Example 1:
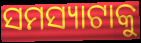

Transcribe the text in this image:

ସମସ୍ୟାଟାକୁ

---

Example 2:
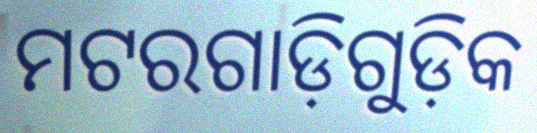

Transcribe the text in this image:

ମଟରଗାଡ଼ିଗୁଡ଼ିକ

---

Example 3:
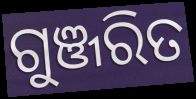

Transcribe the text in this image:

ଗୁଞ୍ଜରିତ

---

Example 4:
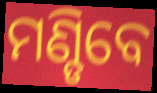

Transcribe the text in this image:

ମଣ୍ଡିବେ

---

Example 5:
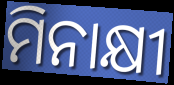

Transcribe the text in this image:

ମିନାକ୍ଷୀ